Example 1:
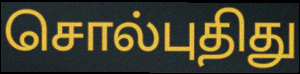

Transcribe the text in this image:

சொல்புதிது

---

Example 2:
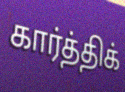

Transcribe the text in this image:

கார்த்திக்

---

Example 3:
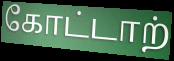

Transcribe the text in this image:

கோட்டாற்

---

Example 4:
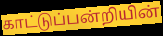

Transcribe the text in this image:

காட்டுப்பன்றியின்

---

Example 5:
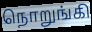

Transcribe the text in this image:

நொறுங்கி